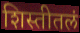
शिस्तीतलं